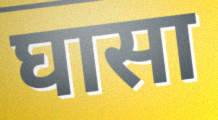
घासा